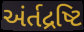
અંર્તદ્રષ્ટિ